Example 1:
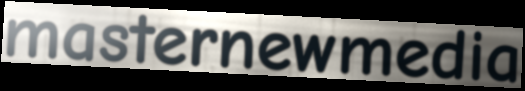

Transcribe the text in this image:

masternewmedia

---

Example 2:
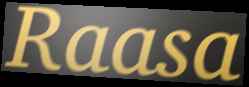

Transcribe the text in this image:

Raasa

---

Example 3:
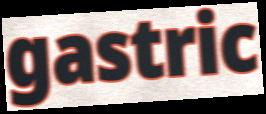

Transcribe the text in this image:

gastric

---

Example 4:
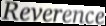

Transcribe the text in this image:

Reverence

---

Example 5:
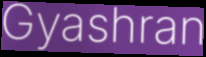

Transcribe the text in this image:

Gyashran